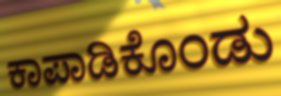
ಕಾಪಾಡಿಕೊಂಡು